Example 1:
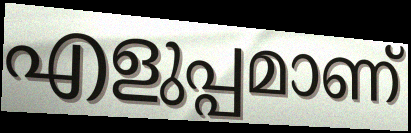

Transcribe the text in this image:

എളുപ്പമാണ്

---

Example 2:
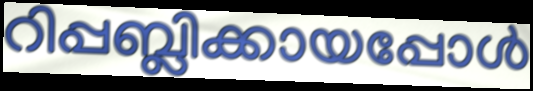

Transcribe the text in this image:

റിപ്പബ്ലിക്കായപ്പോൾ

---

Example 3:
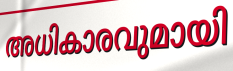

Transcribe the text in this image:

അധികാരവുമായി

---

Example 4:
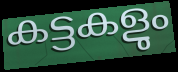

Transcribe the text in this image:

കട്ടകളും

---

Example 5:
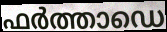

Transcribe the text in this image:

ഫർത്താഡെ